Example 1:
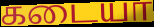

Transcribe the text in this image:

கடையா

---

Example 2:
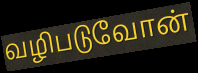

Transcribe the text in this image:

வழிபடுவோன்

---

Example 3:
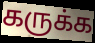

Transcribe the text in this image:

கருக்க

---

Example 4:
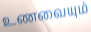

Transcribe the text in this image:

உணவையும்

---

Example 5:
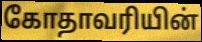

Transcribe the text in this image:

கோதாவரியின்